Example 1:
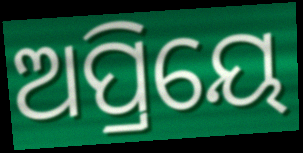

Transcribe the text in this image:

ଅପ୍ରିୟେ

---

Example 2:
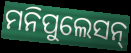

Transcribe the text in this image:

ମନିପୁଲେସନ୍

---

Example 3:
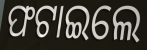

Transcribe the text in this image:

ଫଟାଇଲେ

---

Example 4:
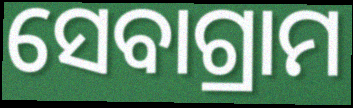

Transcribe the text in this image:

ସେବାଗ୍ରାମ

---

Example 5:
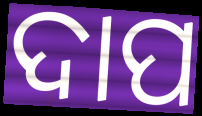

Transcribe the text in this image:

ଦାପ